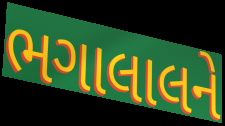
ભગાલાલને